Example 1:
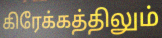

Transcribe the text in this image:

கிரேக்கத்திலும்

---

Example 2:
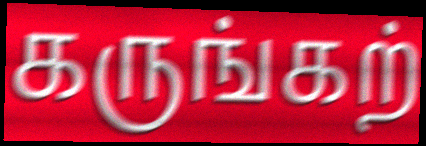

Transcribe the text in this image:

கருங்கற்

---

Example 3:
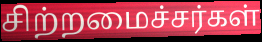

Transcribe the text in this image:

சிற்றமைச்சர்கள்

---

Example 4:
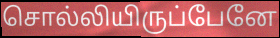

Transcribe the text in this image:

சொல்லியிருப்பேனே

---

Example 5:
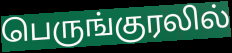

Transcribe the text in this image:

பெருங்குரலில்